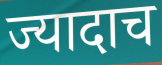
ज्यादाच